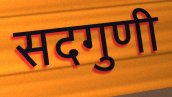
सदगुणी